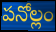
పనోల్లం